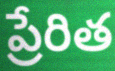
ప్రేరిత